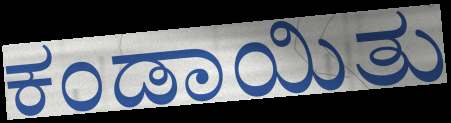
ಕಂಡಾಯಿತು